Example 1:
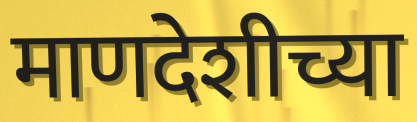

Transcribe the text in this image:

माणदेशीच्या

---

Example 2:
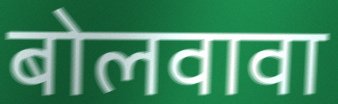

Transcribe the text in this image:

बोलवावा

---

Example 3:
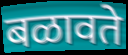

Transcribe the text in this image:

बळावते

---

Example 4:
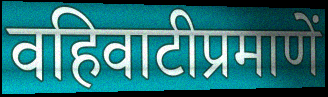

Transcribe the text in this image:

वहिवाटीप्रमाणें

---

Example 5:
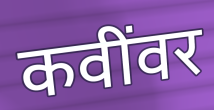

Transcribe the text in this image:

कवींवर